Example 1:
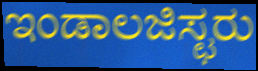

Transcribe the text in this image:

ಇಂಡಾಲಜಿಸ್ಟರು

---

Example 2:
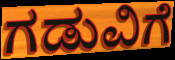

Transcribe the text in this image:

ಗಡುವಿಗೆ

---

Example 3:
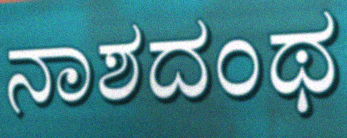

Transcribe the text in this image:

ನಾಶದಂಥ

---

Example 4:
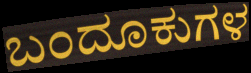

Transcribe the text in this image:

ಬಂದೂಕುಗಳ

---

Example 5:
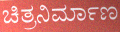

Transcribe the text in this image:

ಚಿತ್ರನಿರ್ಮಾಣ